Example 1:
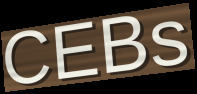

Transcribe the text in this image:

CEBs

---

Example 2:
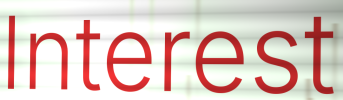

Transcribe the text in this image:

Interest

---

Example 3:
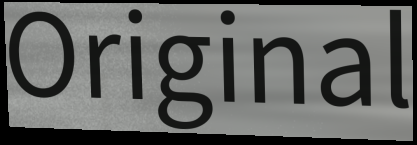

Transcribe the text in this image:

Original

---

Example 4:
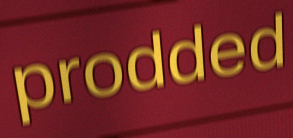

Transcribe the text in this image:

prodded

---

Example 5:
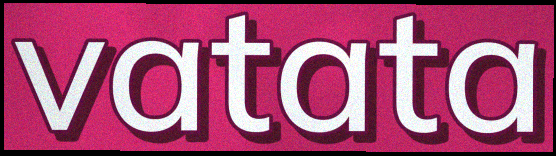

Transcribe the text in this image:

vatata